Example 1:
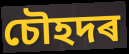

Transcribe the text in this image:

চৌহদৰ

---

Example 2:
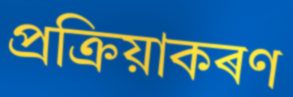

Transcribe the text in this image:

প্ৰক্ৰিয়াকৰণ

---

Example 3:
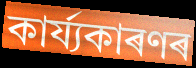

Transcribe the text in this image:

কাৰ্য্যকাৰণৰ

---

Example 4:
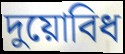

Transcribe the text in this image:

দুয়োবিধ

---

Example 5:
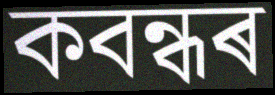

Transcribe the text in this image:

কবন্ধৰ